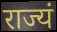
राज्यं